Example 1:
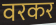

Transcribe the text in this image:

वरकर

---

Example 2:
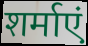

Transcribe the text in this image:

शर्माएं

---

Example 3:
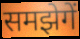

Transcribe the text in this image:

समझेगें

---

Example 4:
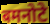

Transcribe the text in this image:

बमनोटे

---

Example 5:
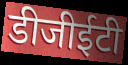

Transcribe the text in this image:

डीजीईटी